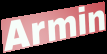
Armin